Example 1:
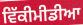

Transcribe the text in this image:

ਵਿੱਕੀਮੀਡੀਆ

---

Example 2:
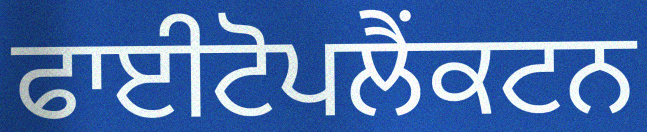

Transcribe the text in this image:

ਫਾਈਟੋਪਲੈਂਕਟਨ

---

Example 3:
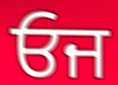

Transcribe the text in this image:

ਓਜ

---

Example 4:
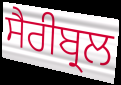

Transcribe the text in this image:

ਸੈਰੀਬ੍ਰਲ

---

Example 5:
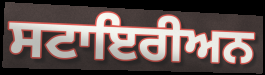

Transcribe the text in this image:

ਸਟਾਇਰੀਅਨ